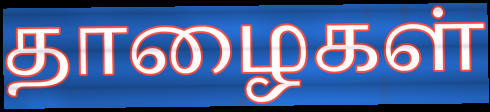
தாழைகள்